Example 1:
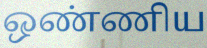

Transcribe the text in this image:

ஒண்ணிய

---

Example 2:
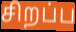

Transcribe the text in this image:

சிறப்ப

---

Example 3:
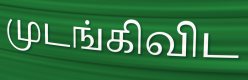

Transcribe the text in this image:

முடங்கிவிட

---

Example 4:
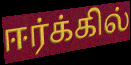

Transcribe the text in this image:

ஈர்க்கில்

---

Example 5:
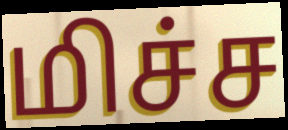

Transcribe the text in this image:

மிச்ச